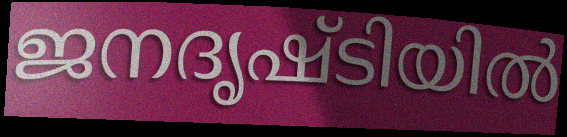
ജനദൃഷ്ടിയിൽ